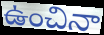
ఉంచినా